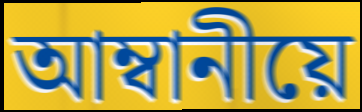
আম্বানীয়ে